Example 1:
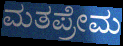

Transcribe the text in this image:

ಮತಪ್ರೇಮ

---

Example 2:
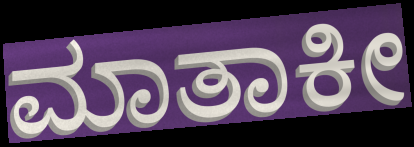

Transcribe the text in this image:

ಮಾತಾಕೀ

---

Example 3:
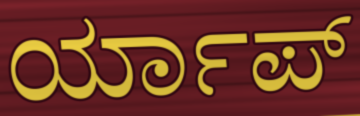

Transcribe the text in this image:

ರ್ಯಾಪ್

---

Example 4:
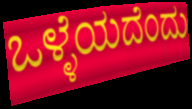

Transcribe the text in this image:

ಒಳ್ಳೆಯದೆಂದು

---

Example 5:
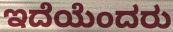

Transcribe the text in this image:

ಇದೆಯೆಂದರು